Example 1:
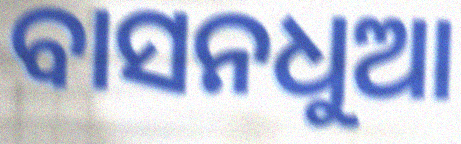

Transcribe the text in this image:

ବାସନଧୁଆ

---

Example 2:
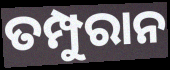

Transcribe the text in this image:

ତମ୍ପୁରାନ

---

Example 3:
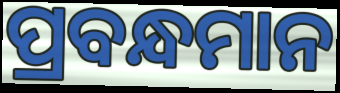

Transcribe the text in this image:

ପ୍ରବନ୍ଧମାନ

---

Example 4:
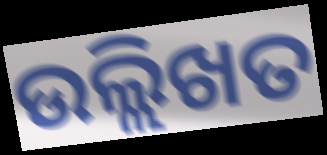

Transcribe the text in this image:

ଉଲ୍ଲିଖତ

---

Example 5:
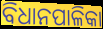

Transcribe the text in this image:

ବିଧାନପାଳିକା